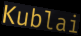
Kublai